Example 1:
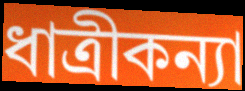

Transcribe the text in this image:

ধাত্রীকন্যা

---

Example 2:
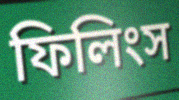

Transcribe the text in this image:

ফিলিংস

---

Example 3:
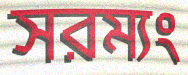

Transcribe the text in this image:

সরম্যং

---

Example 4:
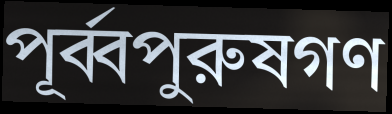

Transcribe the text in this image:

পূর্ব্বপুরুষগণ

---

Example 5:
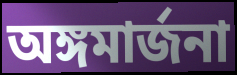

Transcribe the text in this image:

অঙ্গমার্জনা